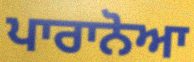
ਪਾਰਾਨੋਆ